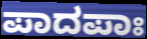
ಪಾದಪಾಃ